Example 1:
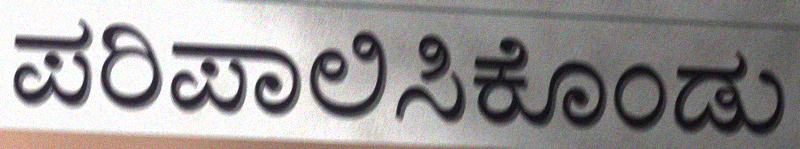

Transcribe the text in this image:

ಪರಿಪಾಲಿಸಿಕೊಂಡು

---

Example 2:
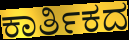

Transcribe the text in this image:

ಕಾರ್ತಿಕದ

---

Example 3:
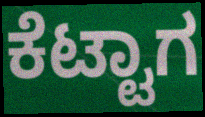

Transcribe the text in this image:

ಕೆಟ್ಟಾಗ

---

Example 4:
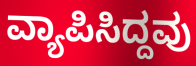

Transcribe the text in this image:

ವ್ಯಾಪಿಸಿದ್ದವು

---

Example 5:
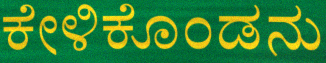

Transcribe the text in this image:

ಕೇಳಿಕೊಂಡನು